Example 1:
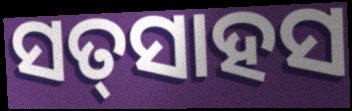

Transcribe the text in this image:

ସତ୍‌ସାହସ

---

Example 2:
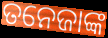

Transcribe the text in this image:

ତନେଜାଙ୍କ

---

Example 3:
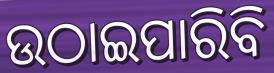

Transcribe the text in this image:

ଉଠାଇପାରିବି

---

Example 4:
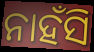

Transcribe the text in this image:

ନାହଁସି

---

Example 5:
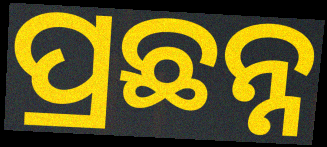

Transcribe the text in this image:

ପ୍ରଛନ୍ନ